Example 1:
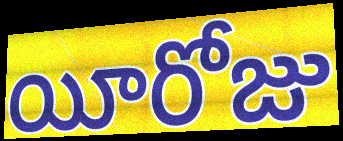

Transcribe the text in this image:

యీరోజు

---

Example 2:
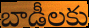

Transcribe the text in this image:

బాడీలకు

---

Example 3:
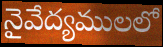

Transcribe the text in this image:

నైవేద్యములలో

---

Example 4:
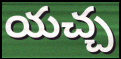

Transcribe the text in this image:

యచ్చ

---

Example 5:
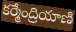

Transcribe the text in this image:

కర్మేంద్రియాణి